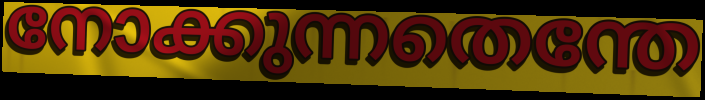
നോക്കുന്നതെന്തേ